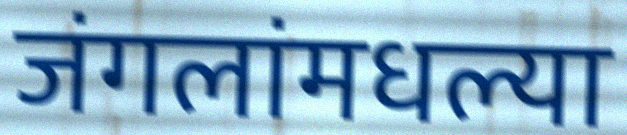
जंगलांमधल्या